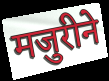
मजुरीने